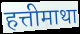
हत्तीमाथा